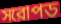
সরোপড